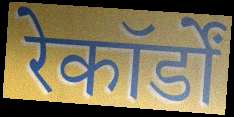
रेकॉर्डों